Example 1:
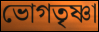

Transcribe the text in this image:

ভোগতৃষ্ণা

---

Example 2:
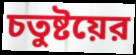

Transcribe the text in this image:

চতুষ্টয়ের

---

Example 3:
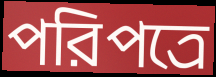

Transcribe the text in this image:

পরিপত্রে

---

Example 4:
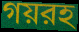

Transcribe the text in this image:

গয়রহ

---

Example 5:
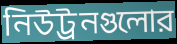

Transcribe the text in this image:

নিউট্রনগুলোর